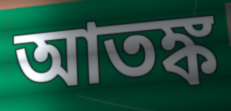
আতঙ্ক